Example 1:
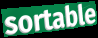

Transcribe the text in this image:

sortable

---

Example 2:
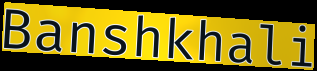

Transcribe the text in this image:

Banshkhali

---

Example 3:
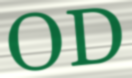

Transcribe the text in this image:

OD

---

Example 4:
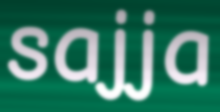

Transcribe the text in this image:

sajja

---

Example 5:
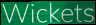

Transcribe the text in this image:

Wickets